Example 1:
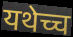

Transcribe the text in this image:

यथेच्च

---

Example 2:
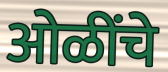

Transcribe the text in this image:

ओळींचे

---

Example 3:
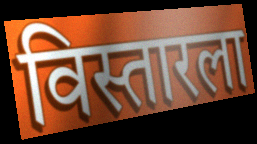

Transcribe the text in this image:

विस्तारला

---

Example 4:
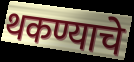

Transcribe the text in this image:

थकण्याचे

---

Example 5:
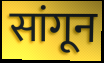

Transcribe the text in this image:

सांगून